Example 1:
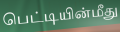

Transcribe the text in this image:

பெட்டியின்மீது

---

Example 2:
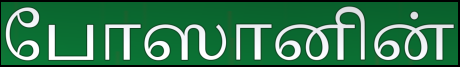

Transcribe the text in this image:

போஸானின்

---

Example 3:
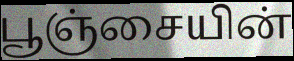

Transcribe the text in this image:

பூஞ்சையின்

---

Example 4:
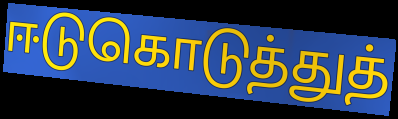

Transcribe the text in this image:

ஈடுகொடுத்துத்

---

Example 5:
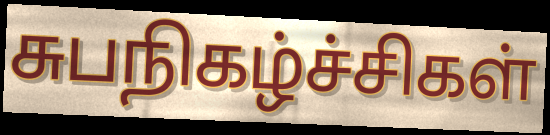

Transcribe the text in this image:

சுபநிகழ்ச்சிகள்